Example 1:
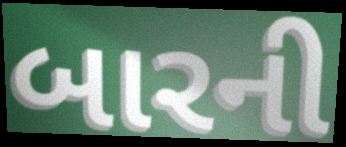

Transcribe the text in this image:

બારની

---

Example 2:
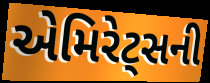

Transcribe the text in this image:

એમિરેટ્સની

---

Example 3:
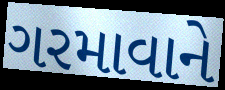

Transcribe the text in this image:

ગરમાવાને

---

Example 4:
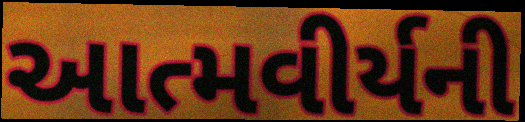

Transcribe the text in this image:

આત્મવીર્યની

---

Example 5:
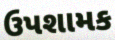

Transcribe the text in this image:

ઉપશામક